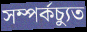
সম্পর্কচ্যুত